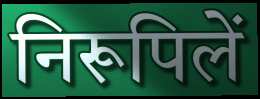
निरूपिलें